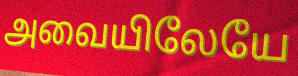
அவையிலேயே